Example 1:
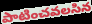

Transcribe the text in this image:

పాటించవలసిన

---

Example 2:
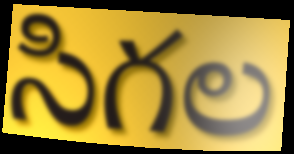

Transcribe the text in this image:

సిగల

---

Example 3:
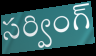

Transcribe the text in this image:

సర్వింగ్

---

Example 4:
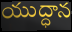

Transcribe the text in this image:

యుద్ధాన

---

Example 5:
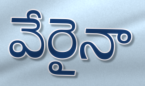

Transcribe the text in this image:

వేరైనా